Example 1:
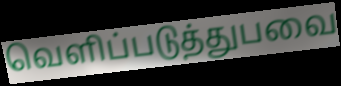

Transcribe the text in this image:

வெளிப்படுத்துபவை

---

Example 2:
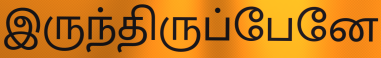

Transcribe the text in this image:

இருந்திருப்பேனே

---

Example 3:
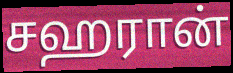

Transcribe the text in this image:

சஹரான்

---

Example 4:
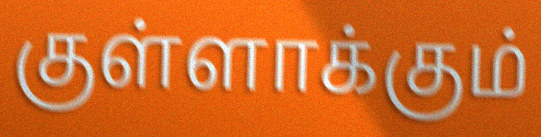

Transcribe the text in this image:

குள்ளாக்கும்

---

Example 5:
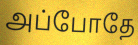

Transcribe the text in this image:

அப்போதே